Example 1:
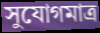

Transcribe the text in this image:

সুযোগমাত্র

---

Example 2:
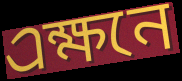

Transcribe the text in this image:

এক্ষনে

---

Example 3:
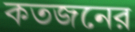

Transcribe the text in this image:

কতজনের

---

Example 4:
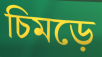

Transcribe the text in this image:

চিমড়ে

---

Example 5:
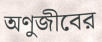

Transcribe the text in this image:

অণুজীবের